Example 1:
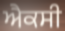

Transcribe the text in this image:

ਐਕਸੀ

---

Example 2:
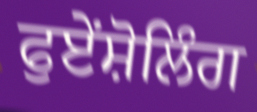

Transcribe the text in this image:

ਫੁਏਂਸ਼ੋਲਿੰਗ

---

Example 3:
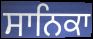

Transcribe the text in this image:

ਸਾਨਿਕਾ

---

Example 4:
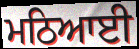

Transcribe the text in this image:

ਮਠਿਆਈ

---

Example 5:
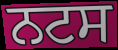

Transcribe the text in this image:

ਨਟਸ